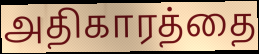
அதிகாரத்தை